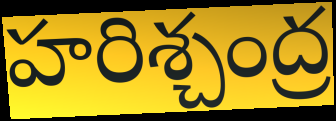
హరిశ్చంద్ర